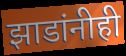
झाडांनीही